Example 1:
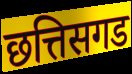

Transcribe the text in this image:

छत्तिसगड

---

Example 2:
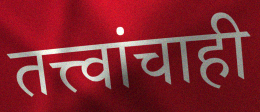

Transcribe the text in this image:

तत्त्वांचाही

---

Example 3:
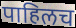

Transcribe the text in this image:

पाहिलच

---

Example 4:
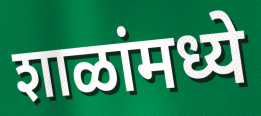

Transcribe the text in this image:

शाळांमध्ये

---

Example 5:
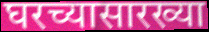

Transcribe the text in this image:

घरच्यासारख्या